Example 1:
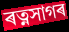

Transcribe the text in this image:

ৰত্নসাগৰ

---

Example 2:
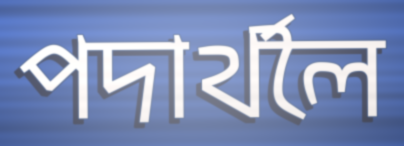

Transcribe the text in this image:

পদাৰ্থলৈ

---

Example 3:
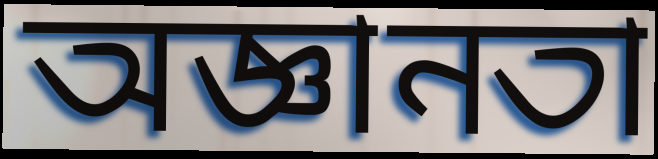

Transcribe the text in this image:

অজ্ঞানতা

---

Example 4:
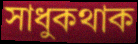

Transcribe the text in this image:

সাধুকথাক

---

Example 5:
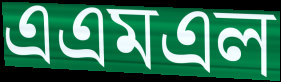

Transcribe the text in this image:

এএমএল